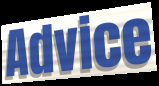
Advice